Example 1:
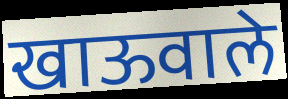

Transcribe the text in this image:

खाऊवाले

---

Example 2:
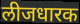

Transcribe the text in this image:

लीजधारक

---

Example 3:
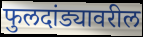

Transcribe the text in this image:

फुलदांड्यावरील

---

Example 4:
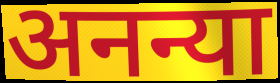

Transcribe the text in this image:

अनन्या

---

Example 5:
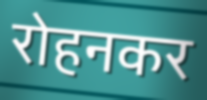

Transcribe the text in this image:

रोहनकर